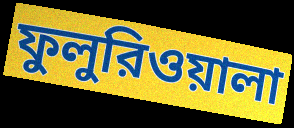
ফুলুরিওয়ালা